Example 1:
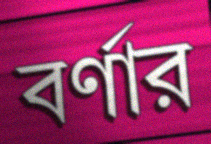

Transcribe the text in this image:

বর্ণার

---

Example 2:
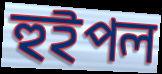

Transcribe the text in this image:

হুইপল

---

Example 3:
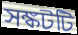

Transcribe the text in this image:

সঙ্কটটি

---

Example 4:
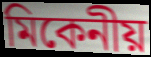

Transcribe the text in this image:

মিকেনীয়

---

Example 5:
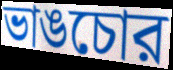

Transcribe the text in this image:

ভাঙচোর